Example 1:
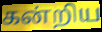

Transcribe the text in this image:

கன்றிய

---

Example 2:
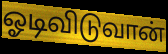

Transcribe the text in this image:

ஓடிவிடுவான்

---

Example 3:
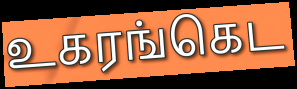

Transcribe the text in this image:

உகரங்கெட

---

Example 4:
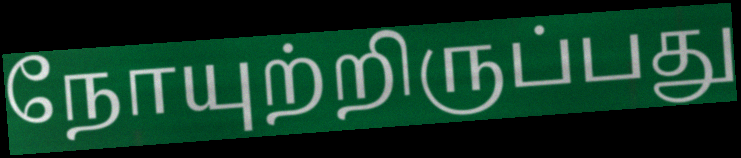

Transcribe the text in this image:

நோயுற்றிருப்பது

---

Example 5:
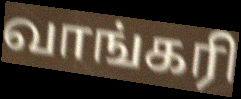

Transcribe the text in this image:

வாங்கரி